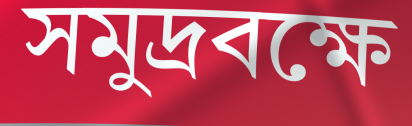
সমুদ্রবক্ষে